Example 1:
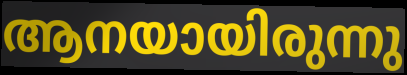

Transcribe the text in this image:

ആനയായിരുന്നു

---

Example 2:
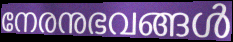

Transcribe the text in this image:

നേരനുഭവങ്ങൾ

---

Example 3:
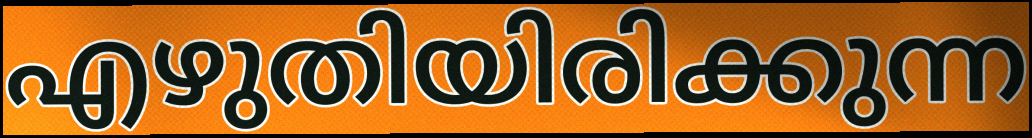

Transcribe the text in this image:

എഴുതിയിരിക്കുന്ന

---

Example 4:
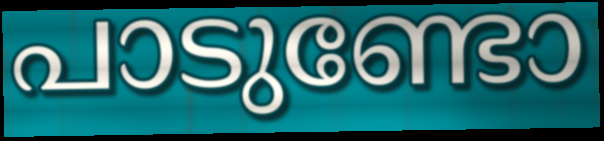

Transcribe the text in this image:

പാടുണ്ടോ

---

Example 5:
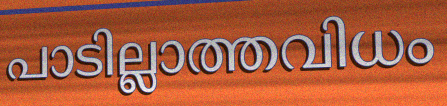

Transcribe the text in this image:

പാടില്ലാത്തവിധം